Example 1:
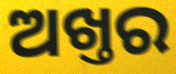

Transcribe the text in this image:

ଅଖ୍ତର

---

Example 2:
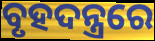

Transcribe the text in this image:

ବୃହଦନ୍ତ୍ରରେ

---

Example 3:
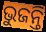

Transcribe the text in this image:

ଭୁଜନ୍ତି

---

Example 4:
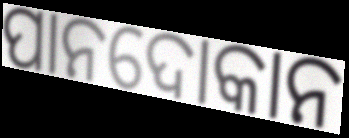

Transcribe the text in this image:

ପାନଦୋକାନ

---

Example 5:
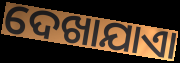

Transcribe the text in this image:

ଦେଖାଯାଏା